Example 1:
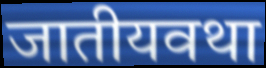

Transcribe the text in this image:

जातीयवथा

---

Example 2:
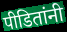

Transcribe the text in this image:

पीडितांनी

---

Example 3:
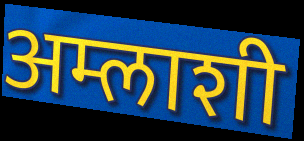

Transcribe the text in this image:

अम्लाशी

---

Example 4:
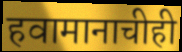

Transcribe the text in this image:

हवामानाचीही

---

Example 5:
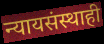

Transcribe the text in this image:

न्यायसंस्थाही